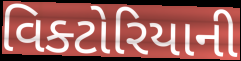
વિક્ટોરિયાની